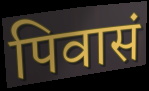
पिवासं